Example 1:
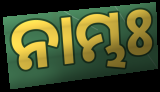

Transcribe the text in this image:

ନାମ୍ଭଃ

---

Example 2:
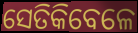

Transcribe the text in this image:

ସେତିକିବେଳେ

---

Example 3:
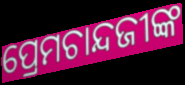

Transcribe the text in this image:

ପ୍ରେମଚାନ୍ଦଜୀଙ୍କ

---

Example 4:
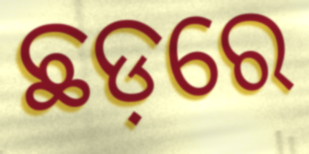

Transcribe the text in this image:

ଛଡ଼ରେ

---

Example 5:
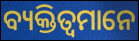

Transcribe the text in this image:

ବ୍ୟକ୍ତିତ୍ୱମାନେ